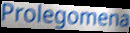
Prolegomena